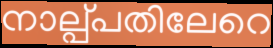
നാല്പ്പതിലേറെ